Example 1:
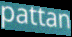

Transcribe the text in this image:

pattan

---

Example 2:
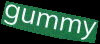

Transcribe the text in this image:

gummy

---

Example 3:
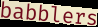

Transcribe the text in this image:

babblers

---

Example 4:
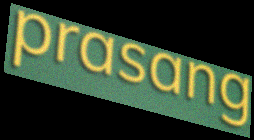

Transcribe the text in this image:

prasang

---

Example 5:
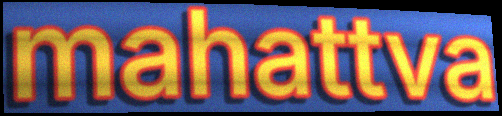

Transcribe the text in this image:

mahattva